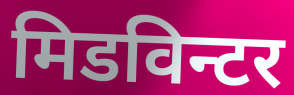
मिडविन्टर